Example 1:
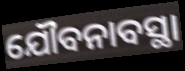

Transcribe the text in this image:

ଯୌବନାବସ୍ଥା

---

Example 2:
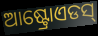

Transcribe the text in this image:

ଆଷ୍ଟ୍ରୋଏଡସ୍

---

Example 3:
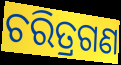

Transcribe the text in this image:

ଚରିତ୍ରଗଣ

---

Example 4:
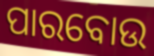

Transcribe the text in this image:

ପାରବୋଉ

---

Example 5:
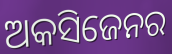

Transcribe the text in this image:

ଅକସିଜେନର